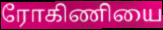
ரோகிணியை